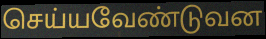
செய்யவேண்டுவன